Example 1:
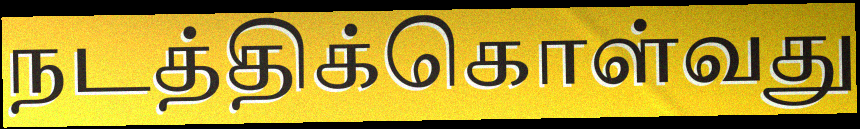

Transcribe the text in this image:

நடத்திக்கொள்வது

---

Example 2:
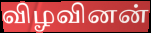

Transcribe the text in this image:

விழவினன்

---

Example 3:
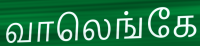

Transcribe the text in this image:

வாலெங்கே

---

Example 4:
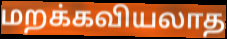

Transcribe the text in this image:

மறக்கவியலாத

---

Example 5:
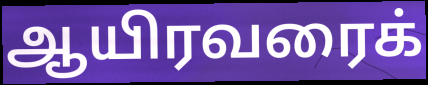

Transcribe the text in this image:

ஆயிரவரைக்